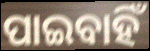
ପାଇବାହିଁ